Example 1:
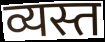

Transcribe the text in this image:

व्‍यस्‍त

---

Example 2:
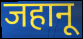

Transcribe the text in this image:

जहानू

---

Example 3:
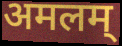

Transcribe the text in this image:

अमलम्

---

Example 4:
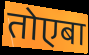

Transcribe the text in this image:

तोएबा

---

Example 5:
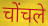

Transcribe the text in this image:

चोंचले